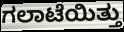
ಗಲಾಟೆಯಿತ್ತು